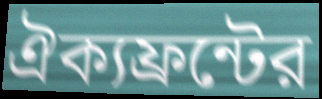
ঐক্যফ্রন্টের